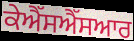
ਕੇਐੱਸਐੱਸਆਰ